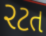
રટત